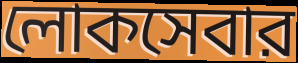
লোকসেবার